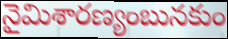
నైమిశారణ్యంబునకుం